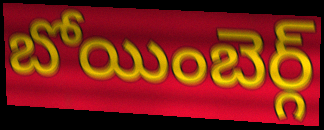
బోయింబెర్గ్